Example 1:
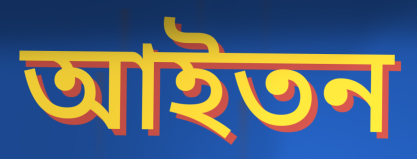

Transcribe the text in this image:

আইতন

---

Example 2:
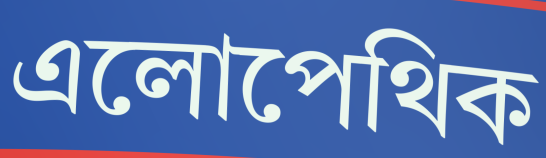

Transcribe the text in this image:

এলোপেথিক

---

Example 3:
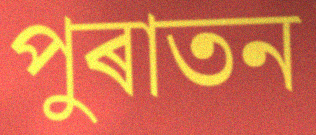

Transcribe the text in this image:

পুৰাতন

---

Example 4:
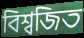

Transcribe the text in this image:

বিশ্বজিত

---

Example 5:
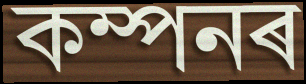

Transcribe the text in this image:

কম্পনৰ